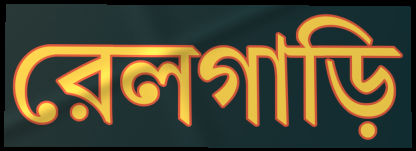
রেলগাড়ি